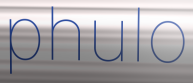
phulo